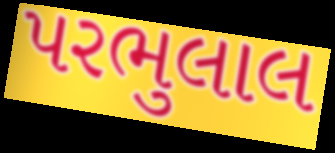
પરભુલાલ